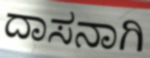
ದಾಸನಾಗಿ